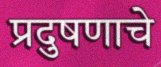
प्रदुषणाचे